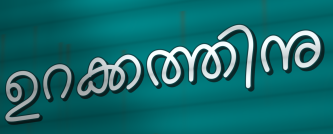
ഉറക്കത്തിനു